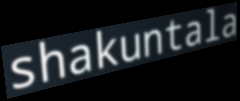
shakuntala